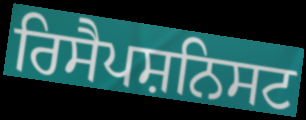
ਰਿਸੈਪਸ਼ਨਿਸਟ